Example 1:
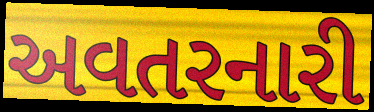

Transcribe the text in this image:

અવતરનારી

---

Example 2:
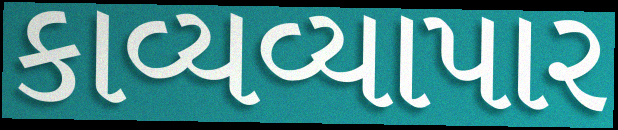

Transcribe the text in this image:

કાવ્યવ્યાપાર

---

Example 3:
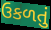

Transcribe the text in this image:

ઉકળતું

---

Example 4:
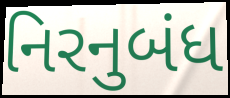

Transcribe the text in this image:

નિરનુબંધ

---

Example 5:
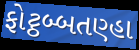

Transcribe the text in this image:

ફોટ્ઠબ્બતણ્હા